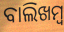
ବାଲିଖମ୍ବ